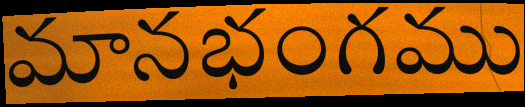
మానభంగము